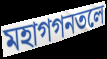
মহাগগনতলে